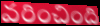
వరించింది